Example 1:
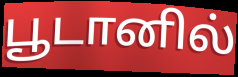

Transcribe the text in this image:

பூடானில்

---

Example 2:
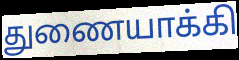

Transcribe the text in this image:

துணையாக்கி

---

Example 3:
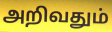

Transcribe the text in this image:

அறிவதும்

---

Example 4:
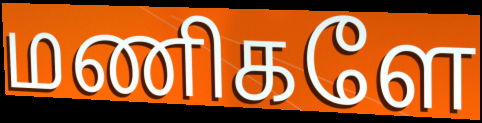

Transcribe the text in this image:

மணிகளே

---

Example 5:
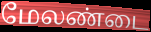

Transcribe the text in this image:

மேலண்டை